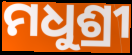
ମଧୁଶ୍ରୀ